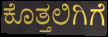
ಕೊತ್ತಲಿಗಿಗೆ